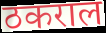
ठकराल